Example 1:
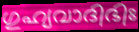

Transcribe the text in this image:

ഗുഹ്യവാദിഭിഃ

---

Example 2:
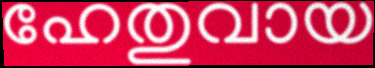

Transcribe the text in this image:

ഹേതുവായ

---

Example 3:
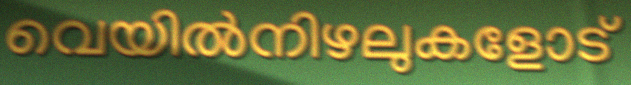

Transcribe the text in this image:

വെയിൽനിഴലുകളോട്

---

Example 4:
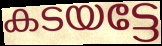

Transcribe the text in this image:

കടയട്ടേ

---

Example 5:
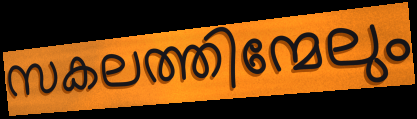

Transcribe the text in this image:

സകലത്തിന്മേലും